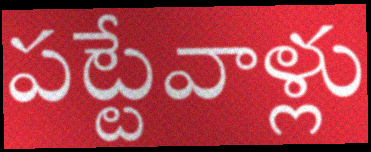
పట్టేవాళ్లు